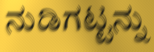
ನುಡಿಗಟ್ಟನ್ನು